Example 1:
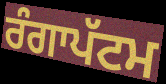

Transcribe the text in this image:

ਰੰਗਾਪੱਟਮ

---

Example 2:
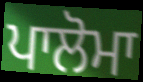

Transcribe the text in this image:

ਪਾਲੋਮਾ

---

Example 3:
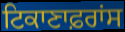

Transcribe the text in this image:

ਟਿਕਾਣਾਫ਼ਰਾਂਸ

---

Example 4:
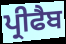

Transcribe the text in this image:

ਪ੍ਰੀਫੈਬ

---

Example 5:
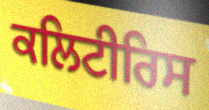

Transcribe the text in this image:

ਕਲਿਟੀਰਿਸ